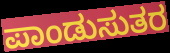
ಪಾಂಡುಸುತರ